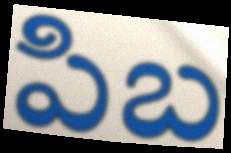
పిబ